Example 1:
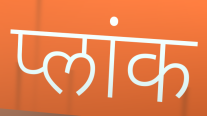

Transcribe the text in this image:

प्लांक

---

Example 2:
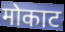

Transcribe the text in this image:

मोकाट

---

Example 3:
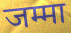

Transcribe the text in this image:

जम्मा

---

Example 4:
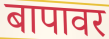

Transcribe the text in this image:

बापावर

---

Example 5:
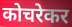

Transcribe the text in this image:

कोचरेकर